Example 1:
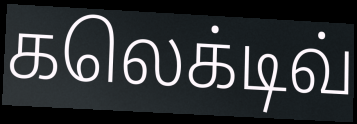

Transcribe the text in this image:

கலெக்டிவ்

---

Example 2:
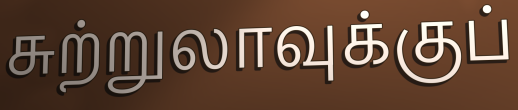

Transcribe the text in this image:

சுற்றுலாவுக்குப்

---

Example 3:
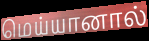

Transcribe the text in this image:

மெய்யானால்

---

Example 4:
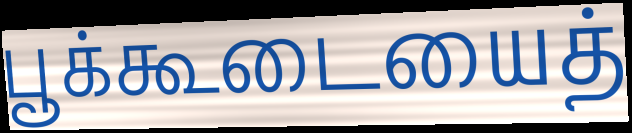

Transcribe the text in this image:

பூக்கூடையைத்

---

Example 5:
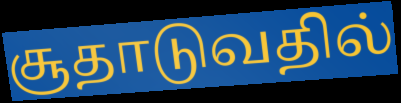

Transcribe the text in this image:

சூதாடுவதில்